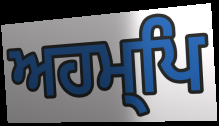
ਅਹਮ੍ਪਿ